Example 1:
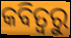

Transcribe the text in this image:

କବିତ୍ଵରୁ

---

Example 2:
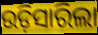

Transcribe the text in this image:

ଉଡ଼ିସାରିଲା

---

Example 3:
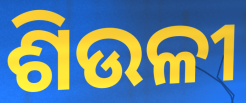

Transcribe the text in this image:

ଶିଉଳୀ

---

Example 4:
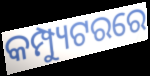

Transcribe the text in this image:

କମ୍ପ୍ୟୁଟରରେ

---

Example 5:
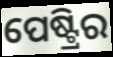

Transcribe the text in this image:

ପେଷ୍ଟ୍ରିର